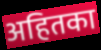
अहितका